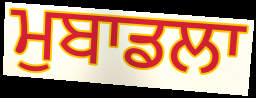
ਮੁਬਾਡਲਾ